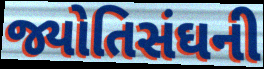
જ્યોતિસંઘની